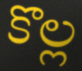
కొల్ల